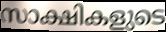
സാക്ഷികളുടെ